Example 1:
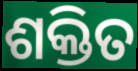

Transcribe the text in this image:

ଶକ୍ତିତ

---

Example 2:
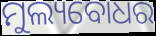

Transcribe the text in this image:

ମୁଲ୍ୟବୋଧର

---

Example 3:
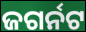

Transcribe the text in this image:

ଜଗର୍ନଟ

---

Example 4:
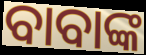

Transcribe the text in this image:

ବାବାଙ୍କ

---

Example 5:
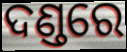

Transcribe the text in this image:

ଦଣ୍ଡରେ